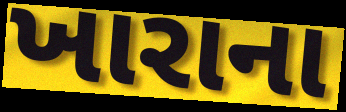
ખારાના